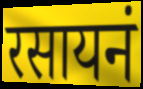
रसायनं